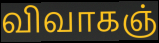
விவாகஞ்